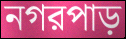
নগরপাড়